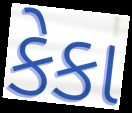
કેકા